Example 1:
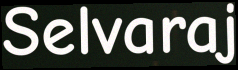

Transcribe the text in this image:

Selvaraj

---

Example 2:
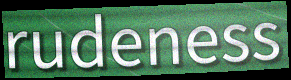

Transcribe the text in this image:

rudeness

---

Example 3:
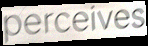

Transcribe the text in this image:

perceives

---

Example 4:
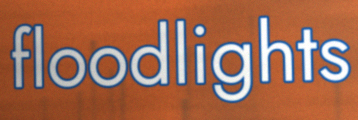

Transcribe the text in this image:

floodlights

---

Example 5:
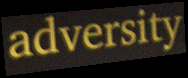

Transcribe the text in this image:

adversity